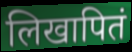
लिखापितं